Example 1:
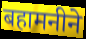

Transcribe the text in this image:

बहामनीने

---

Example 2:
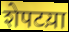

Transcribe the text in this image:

शेपटय़ा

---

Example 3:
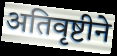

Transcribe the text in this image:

अतिवृष्टीने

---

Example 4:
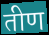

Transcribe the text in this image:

तीण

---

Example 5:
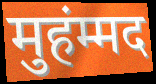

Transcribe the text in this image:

मुहंम्मद